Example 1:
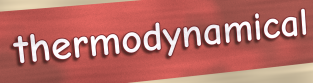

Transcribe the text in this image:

thermodynamical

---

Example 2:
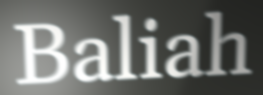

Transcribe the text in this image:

Baliah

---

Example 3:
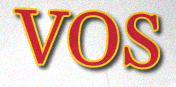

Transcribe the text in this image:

VOS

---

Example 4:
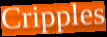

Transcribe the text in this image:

Cripples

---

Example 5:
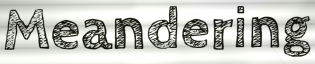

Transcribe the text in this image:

Meandering